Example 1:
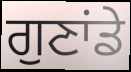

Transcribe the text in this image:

ਗੁਣਾਂਡੇ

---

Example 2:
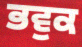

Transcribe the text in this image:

ਭਵੁਕ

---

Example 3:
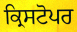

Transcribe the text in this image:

ਕ੍ਰਿਸਟੋਪਰ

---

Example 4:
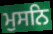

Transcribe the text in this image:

ਮੁਸਨਿ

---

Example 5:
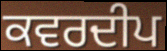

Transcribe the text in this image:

ਕਵਰਦੀਪ